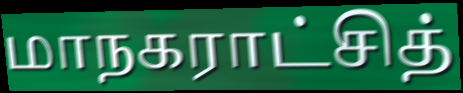
மாநகராட்சித்